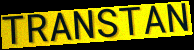
TRANSTAN